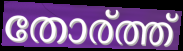
തോര്ത്ത്